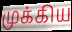
முக்கிய